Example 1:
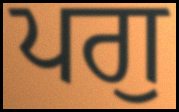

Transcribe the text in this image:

ਪਗੁ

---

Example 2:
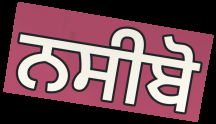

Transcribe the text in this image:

ਨਸੀਬੋ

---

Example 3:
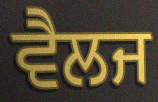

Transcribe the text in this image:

ਵੈਲਜ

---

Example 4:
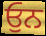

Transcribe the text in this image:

ਓੁਨ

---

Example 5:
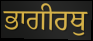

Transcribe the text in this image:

ਭਾਗੀਰਥੁ